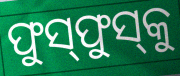
ଫୁସ୍‌ଫୁସ୍‌କୁ